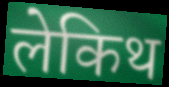
लेकिथ